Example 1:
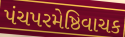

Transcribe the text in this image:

પંચપરમેષ્ઠિવાચક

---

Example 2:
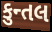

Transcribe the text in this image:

કુન્તલ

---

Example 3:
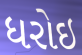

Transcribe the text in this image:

ધરોઇ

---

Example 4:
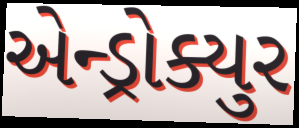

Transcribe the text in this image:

એન્ડ્રોક્યુર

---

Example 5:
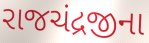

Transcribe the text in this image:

રાજચંદ્રજીના